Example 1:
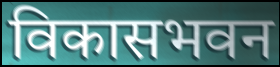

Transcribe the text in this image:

विकासभवन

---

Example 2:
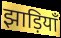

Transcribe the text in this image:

झाड़ियाँ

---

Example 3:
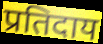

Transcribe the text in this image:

प्रतिदाय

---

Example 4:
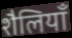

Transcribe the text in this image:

शैलियाँ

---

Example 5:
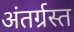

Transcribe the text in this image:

अंतर्ग्रस्त